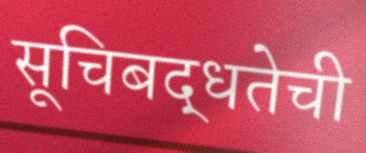
सूचिबद्धतेची